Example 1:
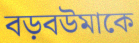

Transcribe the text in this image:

বড়বউমাকে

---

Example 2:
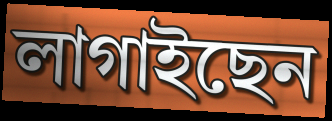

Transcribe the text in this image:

লাগাইছেন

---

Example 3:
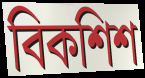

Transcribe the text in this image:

বিকশিশ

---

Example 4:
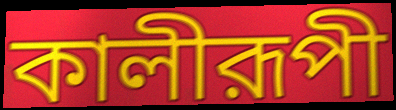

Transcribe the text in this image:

কালীরূপী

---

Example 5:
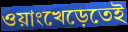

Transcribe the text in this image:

ওয়াংখেড়েতেই